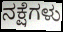
ನಕ್ಷೆಗಳು